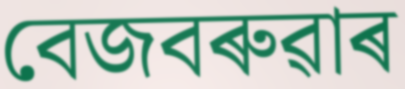
বেজবৰুৱাৰ